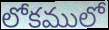
లోకములో